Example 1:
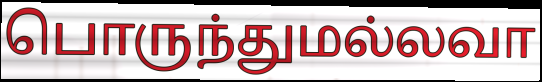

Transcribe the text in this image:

பொருந்துமல்லவா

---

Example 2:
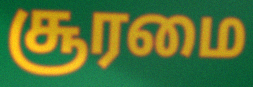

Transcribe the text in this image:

சூரமை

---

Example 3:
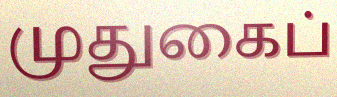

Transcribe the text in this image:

முதுகைப்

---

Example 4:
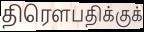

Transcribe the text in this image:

திரௌபதிக்குக்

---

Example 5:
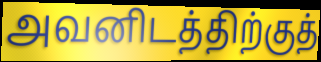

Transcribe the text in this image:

அவனிடத்திற்குத்